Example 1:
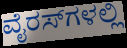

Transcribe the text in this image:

ವೈರಸ್‌ಗಳಲ್ಲಿ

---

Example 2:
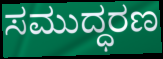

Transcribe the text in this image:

ಸಮುದ್ಧರಣ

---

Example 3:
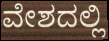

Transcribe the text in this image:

ವೇಶದಲ್ಲಿ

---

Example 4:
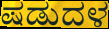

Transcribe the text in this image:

ಷಡುದಳ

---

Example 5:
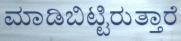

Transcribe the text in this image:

ಮಾಡಿಬಿಟ್ಟಿರುತ್ತಾರೆ